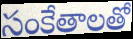
సంకేతాలతో